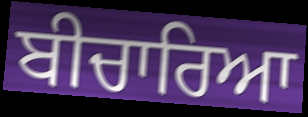
ਬੀਚਾਰਿਆ